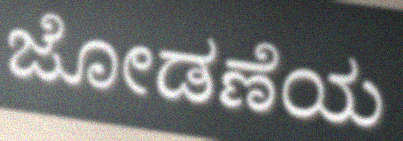
ಜೋಡಣೆಯ